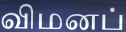
விமனப்